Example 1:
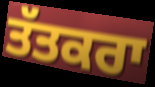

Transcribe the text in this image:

ਤੱਤਕਰਾ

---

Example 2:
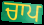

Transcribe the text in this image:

ਚਾਪ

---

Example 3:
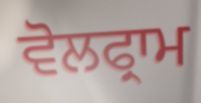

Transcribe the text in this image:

ਵੋਲਫ੍ਰਾਮ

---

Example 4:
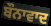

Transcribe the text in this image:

ਬੌਨਾਵਾਦ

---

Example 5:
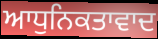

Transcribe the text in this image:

ਆਧੁਨਿਕਤਾਵਾਦ